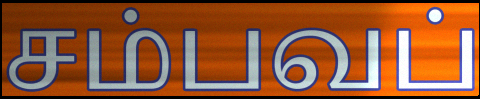
சம்பவப்